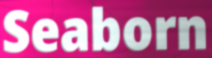
Seaborn